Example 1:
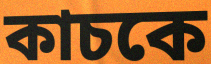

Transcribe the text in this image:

কাচকে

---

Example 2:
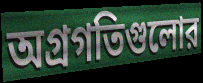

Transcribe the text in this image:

অগ্রগতিগুলোর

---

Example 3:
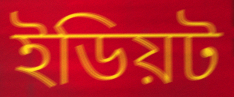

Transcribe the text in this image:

ইডিয়ট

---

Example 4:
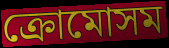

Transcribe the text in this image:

ক্রোমোসম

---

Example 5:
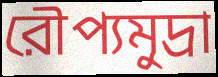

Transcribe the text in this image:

রৌপ্যমুদ্রা